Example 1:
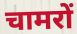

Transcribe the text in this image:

चामरों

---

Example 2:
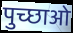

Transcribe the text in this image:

पुच्छाओ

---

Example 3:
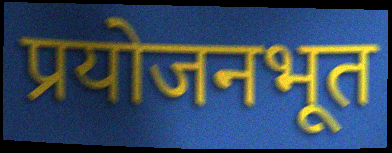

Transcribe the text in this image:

प्रयोजनभूत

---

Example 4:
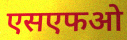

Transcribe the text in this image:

एसएफओ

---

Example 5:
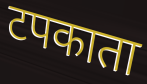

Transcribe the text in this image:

टपकाता